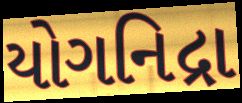
યોગનિદ્રા